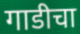
गाडीचा